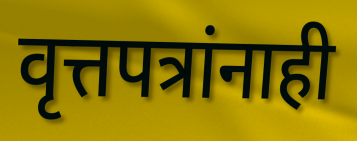
वृत्तपत्रांनाही